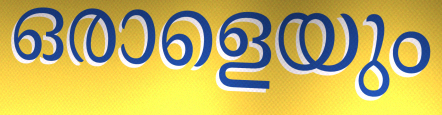
ഒരാളെയും